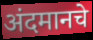
अंदमानचे